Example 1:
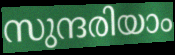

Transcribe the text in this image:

സുന്ദരിയാം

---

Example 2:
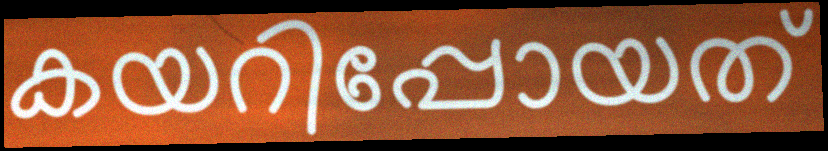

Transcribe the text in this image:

കയറിപ്പോയത്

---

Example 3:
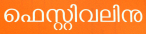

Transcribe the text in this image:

ഫെസ്റ്റിവലിനു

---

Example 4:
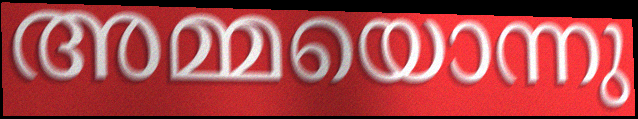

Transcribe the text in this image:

അമ്മയൊന്നു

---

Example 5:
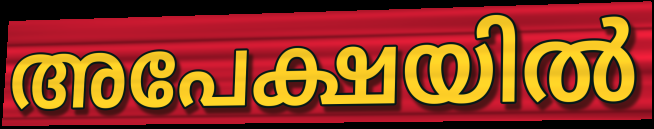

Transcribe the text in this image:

അപേക്ഷയിൽ